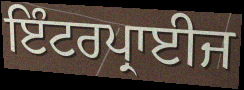
ਇੰਟਰਪ੍ਰਾਈਜ